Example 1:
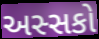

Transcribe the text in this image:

અસ્સકો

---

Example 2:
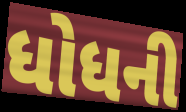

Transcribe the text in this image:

ધોધની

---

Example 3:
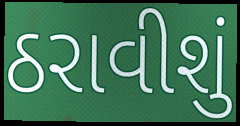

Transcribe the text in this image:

ઠરાવીશું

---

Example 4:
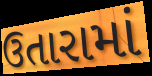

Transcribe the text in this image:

ઉતારામાં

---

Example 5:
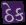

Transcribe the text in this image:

ઠેક